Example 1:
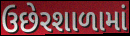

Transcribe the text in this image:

ઉછેરશાળામાં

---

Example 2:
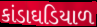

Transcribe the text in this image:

કાંડાઘડિયાળ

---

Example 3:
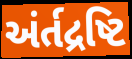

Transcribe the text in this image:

અંર્તદ્રષ્ટિ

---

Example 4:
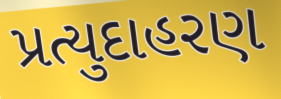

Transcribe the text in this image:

પ્રત્યુદાહરણ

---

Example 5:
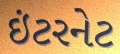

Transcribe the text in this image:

ઇંટરનેટ